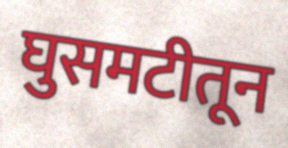
घुसमटीतून